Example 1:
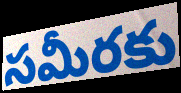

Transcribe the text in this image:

సమీరకు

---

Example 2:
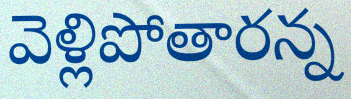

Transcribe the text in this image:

వెళ్లిపోతారన్న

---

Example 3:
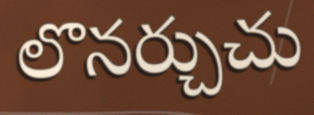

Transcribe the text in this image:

లొనర్చుచు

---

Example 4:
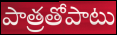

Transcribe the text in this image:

పాత్రతోపాటు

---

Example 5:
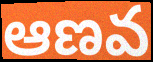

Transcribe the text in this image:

ఆణవ